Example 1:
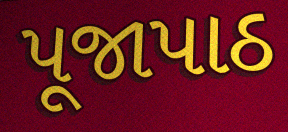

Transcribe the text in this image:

પૂજાપાઠ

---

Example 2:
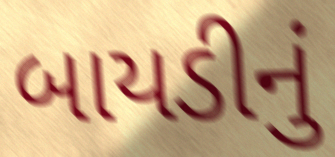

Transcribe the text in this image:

બાયડીનું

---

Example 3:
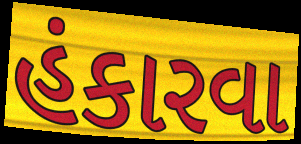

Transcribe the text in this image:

હંકારવા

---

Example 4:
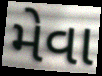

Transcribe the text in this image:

મેવા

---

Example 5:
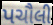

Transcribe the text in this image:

પચૌલી